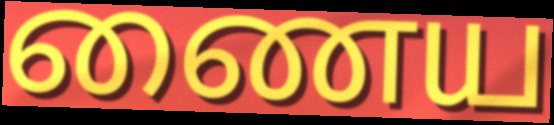
ணைய